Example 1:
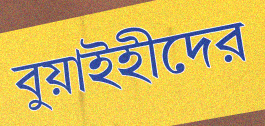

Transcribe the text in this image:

বুয়াইহীদের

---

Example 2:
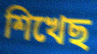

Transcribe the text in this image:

শিখেছ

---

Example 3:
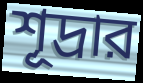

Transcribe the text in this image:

শূদ্রার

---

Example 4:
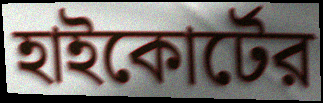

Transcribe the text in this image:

হাইকোর্টের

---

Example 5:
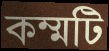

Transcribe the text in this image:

কম্মটি